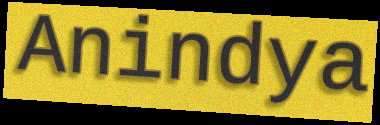
Anindya